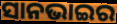
ସାନଭାଇର